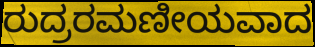
ರುದ್ರರಮಣೀಯವಾದ